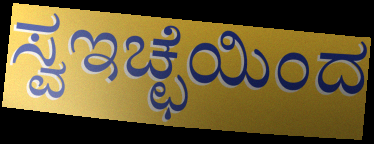
ಸ್ವಇಚ್ಛೆಯಿಂದ